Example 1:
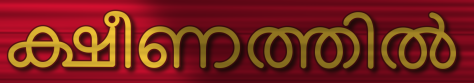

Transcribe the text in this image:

ക്ഷീണത്തിൽ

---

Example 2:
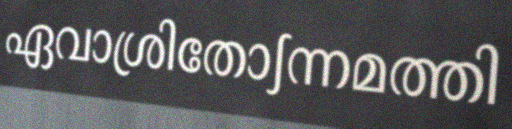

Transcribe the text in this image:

ഏവാശ്രിതോഽന്നമത്തി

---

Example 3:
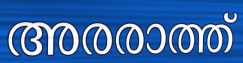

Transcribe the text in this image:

അരരാത്ത്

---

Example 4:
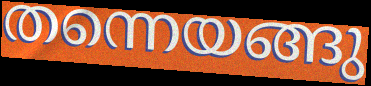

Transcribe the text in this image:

തന്നെയങ്ങു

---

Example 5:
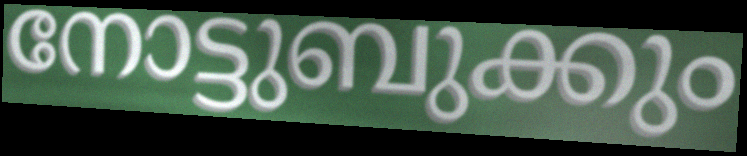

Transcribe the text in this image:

നോട്ടുബുക്കും